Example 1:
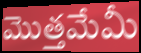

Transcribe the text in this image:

మొత్తమేమీ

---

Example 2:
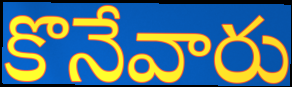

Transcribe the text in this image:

కొనేవారు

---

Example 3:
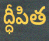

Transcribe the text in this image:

ద్ధీపిత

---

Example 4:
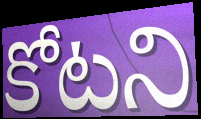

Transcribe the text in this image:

కోటని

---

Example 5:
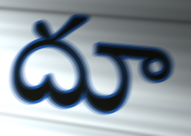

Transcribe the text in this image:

దూ